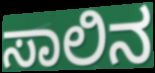
ಸಾಲಿನ